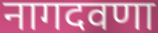
नागदवणा